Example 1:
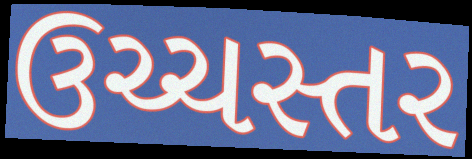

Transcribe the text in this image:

ઉચ્ચસ્તર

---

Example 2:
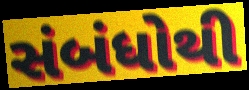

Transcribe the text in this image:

સંબંધોથી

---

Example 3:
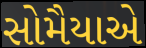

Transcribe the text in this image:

સોમૈયાએ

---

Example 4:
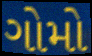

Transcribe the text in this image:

ગોમો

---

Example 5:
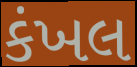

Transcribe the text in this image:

કંખલ